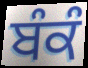
ਬੰਕੰ